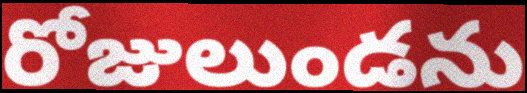
రోజులుండను